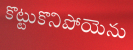
కొట్టుకొనిపోయెను